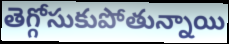
తెగ్గోసుకుపోతున్నాయి